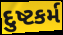
દુષ્ટકર્મ